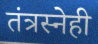
तंत्रस्नेही